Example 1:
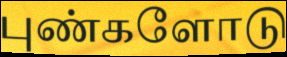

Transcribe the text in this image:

புண்களோடு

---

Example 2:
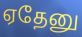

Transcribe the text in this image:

ஏதேனு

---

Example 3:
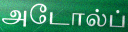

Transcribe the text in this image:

அடோல்ப்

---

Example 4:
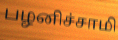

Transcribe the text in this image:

பழனிச்சாமி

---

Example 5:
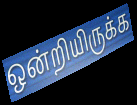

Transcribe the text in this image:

ஒன்றியிருக்க